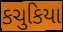
કચુકિયા